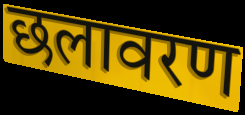
छलावरण